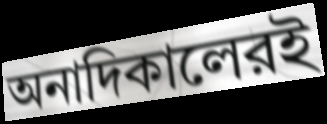
অনাদিকালেরই